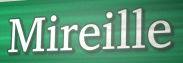
Mireille